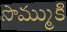
సొమ్ముకి